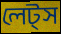
লেট্‌স